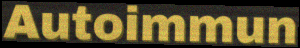
Autoimmun